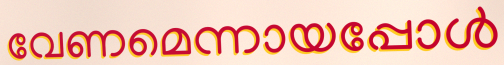
വേണമെന്നായപ്പോൾ